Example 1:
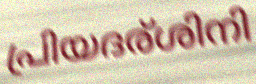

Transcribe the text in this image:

പ്രിയദര്ശിനി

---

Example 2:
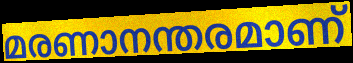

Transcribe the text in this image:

മരണാനന്തരമാണ്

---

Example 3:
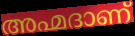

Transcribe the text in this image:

അഹ്മദാണ്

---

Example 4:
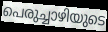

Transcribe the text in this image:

പെരുച്ചാഴിയുടെ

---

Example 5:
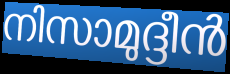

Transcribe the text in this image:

നിസാമുദ്ദീൻ